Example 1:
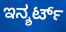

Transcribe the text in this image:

ಇನ್ಶರ್ಟ್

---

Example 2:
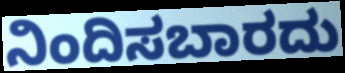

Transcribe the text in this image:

ನಿಂದಿಸಬಾರದು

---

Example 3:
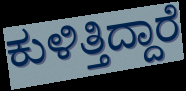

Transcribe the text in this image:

ಕುಳಿತ್ತಿದ್ದಾರೆ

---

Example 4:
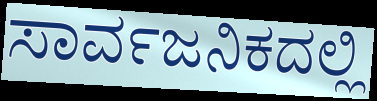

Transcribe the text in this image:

ಸಾರ್ವಜನಿಕದಲ್ಲಿ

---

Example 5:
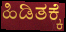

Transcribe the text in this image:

ಹಿಡಿತಕ್ಕೆ